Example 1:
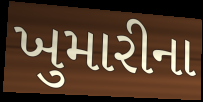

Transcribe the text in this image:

ખુમારીના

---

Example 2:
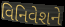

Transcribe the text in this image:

વિનિવેશને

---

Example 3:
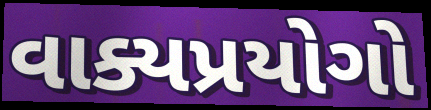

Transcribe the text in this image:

વાક્યપ્રયોગો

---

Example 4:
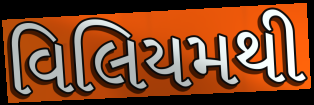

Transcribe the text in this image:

વિલિયમથી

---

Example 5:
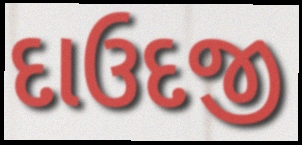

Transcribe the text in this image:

દાઉદજી